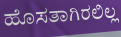
ಹೊಸತಾಗಿರಲಿಲ್ಲ